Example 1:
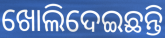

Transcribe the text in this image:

ଖୋଲିଦେଇଛନ୍ତି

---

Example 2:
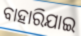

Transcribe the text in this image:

ବାହାରିଯାଇ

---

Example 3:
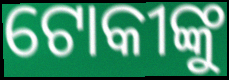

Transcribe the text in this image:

ଟୋକୀଙ୍କୁ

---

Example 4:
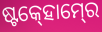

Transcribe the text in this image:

ଷ୍ଟକ୍‍ହୋମ୍‍ରେ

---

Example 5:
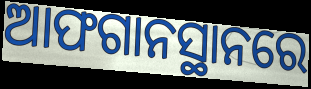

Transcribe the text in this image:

ଆଫଗାନସ୍ଥାନରେ